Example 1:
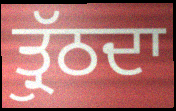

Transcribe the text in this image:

ਤ੍ਰੁੱਠਦਾ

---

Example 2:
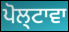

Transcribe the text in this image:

ਪੋਲ੍ਟਾਵਾ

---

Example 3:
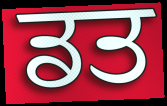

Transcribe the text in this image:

ਡਤ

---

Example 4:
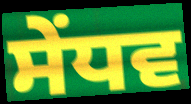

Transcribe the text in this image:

ਸੇਂਧਵ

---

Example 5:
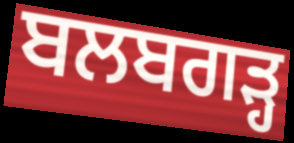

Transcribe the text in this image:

ਬਲਬਗੜ੍ਹ